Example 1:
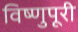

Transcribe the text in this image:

विष्णुपूरी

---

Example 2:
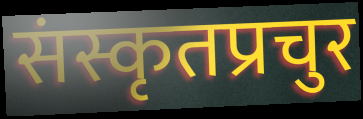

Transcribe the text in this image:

संस्कृतप्रचुर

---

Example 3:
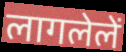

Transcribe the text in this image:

लागलेलें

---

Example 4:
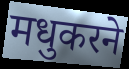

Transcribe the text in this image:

मधुकरने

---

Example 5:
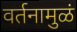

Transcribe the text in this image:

वर्तनामुळं